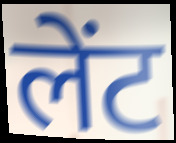
लेंट